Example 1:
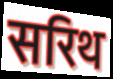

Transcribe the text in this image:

सरिथ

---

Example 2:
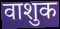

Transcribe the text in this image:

वाशुक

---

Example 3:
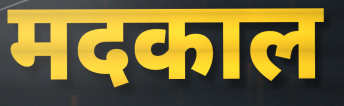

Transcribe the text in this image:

मदकाल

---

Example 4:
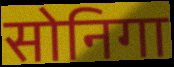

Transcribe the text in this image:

सोनिगा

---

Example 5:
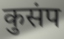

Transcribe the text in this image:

कुसंप